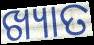
ଖ୍ୟାତ